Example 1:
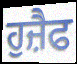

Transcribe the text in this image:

ਹੁਜ਼ੈਫ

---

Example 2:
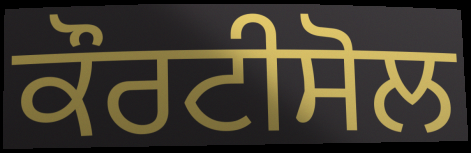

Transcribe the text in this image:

ਕੌਰਟੀਸੋਲ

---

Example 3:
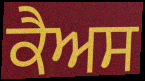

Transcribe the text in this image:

ਕੈਅਸ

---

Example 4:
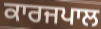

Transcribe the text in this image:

ਕਾਰਜਪਾਲ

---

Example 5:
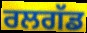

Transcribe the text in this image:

ਰਲਗੱਡ